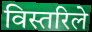
विस्तरिले